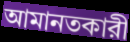
আমানতকারী